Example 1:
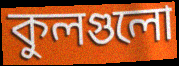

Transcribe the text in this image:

কুলগুলো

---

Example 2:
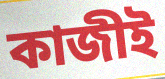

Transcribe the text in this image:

কাজীই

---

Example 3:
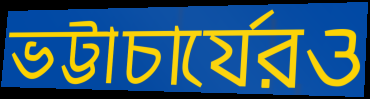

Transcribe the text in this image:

ভট্টাচার্যেরও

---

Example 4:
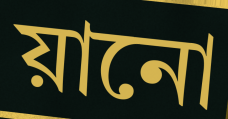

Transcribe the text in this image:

য়ানো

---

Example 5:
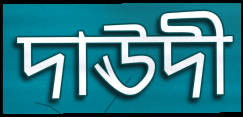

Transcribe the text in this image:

দাঊদী